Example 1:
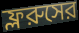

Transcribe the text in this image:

ফ্লরুসের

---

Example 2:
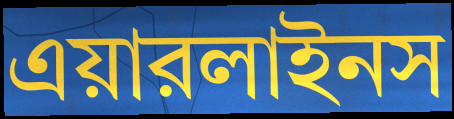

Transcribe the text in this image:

এয়ারলাইনস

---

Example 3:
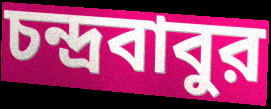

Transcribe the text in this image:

চন্দ্রবাবুর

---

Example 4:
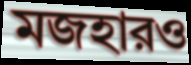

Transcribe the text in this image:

মজহারও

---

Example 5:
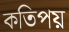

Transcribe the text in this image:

কতিপয়